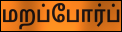
மறப்போர்ப்